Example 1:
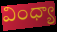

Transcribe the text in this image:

వింధ్యా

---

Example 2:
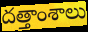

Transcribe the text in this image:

దత్తాంశాలు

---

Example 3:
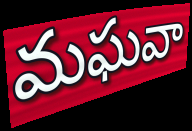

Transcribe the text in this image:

మఘవా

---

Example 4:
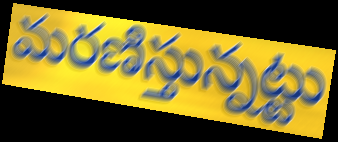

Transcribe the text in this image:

మరణిస్తున్నట్టు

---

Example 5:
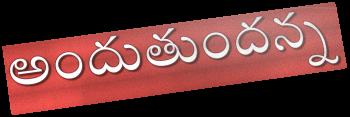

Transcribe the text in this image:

అందుతుందన్న